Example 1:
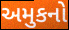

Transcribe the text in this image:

અમુકનો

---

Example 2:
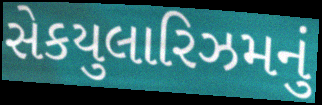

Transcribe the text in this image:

સેકયુલારિઝમનું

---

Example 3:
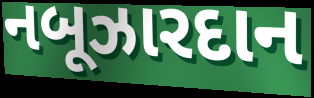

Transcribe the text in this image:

નબૂઝારદાન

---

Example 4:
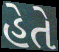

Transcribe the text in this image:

હેતે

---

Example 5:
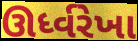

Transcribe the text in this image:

ઊર્ધ્વરેખા